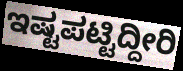
ಇಷ್ಟಪಟ್ಟಿದ್ದೀರಿ